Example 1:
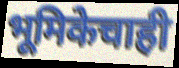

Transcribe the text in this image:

भूमिकेचाही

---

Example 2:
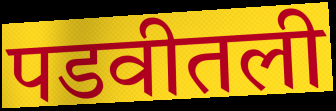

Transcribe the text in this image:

पडवीतली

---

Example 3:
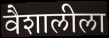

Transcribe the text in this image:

वैशालीला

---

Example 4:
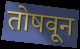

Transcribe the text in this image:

तोषवून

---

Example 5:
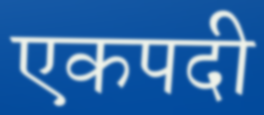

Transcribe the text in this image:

एकपदी